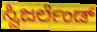
ಸ್ವಿಜರ್ಲೆಂಡ್